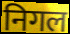
निगल